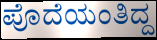
ಪೊದೆಯಂತಿದ್ದ